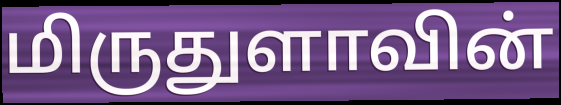
மிருதுளாவின்